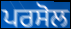
ਪਰਸੋਲ